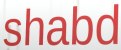
shabd